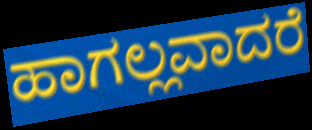
ಹಾಗಲ್ಲವಾದರೆ